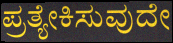
ಪ್ರತ್ಯೇಕಿಸುವುದೇ